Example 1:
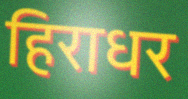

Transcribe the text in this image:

हिराधर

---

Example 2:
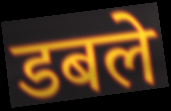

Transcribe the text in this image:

डबले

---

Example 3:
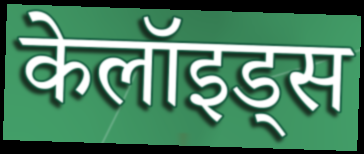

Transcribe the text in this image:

केलॉइड्स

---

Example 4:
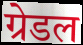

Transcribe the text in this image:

ग्रेडल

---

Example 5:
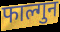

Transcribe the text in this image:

फाल्गुन